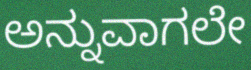
ಅನ್ನುವಾಗಲೇ